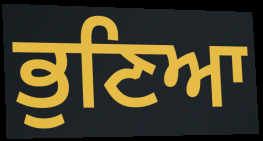
ਭੁਣਿਆ